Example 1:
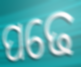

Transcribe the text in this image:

ପଢେ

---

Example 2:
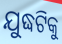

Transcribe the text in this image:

ଯୁଦ୍ଧଟିକୁ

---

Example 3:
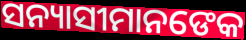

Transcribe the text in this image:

ସନ୍ୟାସୀମାନଙେକ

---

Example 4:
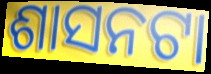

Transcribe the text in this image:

ଶାସନଟା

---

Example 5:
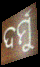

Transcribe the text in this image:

ଦର୍ମୁ